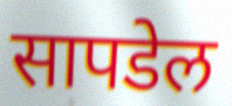
सापडेल